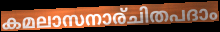
കമലാസനാര്ചിതപദാം